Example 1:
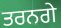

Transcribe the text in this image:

ਤਰਨਗੇ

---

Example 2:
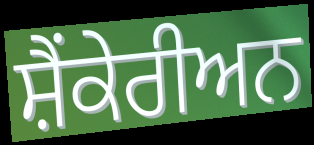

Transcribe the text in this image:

ਸ਼ੈਂਕੇਰੀਅਨ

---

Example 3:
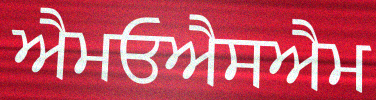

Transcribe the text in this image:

ਐਮਓਐਸਐਮ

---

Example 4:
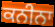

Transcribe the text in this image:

ਕਨੀਨਾ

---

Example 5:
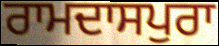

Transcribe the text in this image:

ਰਾਮਦਾਸਪੁਰਾ